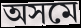
অসমে